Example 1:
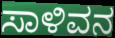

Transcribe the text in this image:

ಸಾಳಿವನ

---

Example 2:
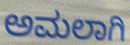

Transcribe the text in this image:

ಅಮಲಾಗಿ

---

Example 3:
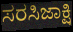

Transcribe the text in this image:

ಸರಸಿಜಾಕ್ಷಿ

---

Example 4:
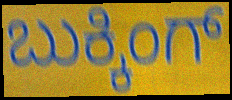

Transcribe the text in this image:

ಬುಕ್ಕಿಂಗ್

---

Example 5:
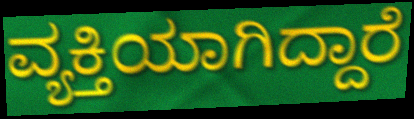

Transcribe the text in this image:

ವ್ಯಕ್ತಿಯಾಗಿದ್ದಾರೆ